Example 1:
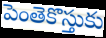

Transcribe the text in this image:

పెంతెకొస్తుకు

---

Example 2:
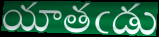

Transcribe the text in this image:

యాతఁడు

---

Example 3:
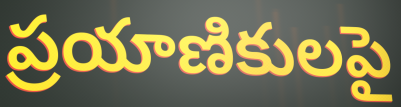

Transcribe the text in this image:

ప్రయాణికులపై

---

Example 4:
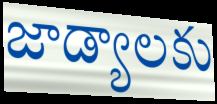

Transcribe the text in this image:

జాడ్యాలకు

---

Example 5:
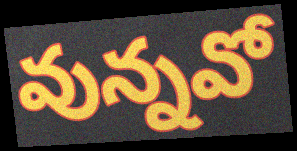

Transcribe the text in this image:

వున్నవో